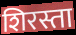
शिरस्ता